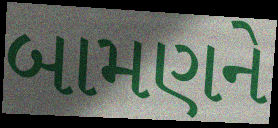
બામણને